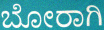
ಬೋರಾಗಿ